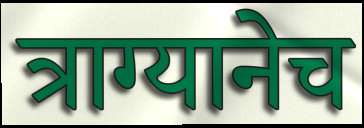
त्राग्यानेच